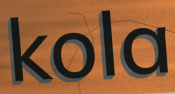
kola